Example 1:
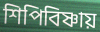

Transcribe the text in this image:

শিপিবিষ্ণায়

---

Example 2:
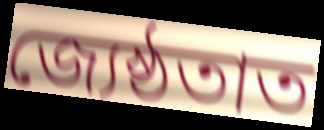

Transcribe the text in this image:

জ্যেষ্ঠতাত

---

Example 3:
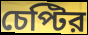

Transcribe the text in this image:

চেপ্টির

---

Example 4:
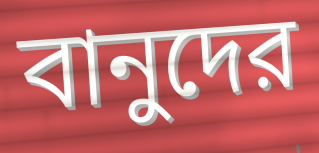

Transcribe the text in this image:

বানুদের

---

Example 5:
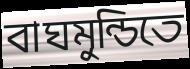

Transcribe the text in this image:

বাঘমুন্ডিতে